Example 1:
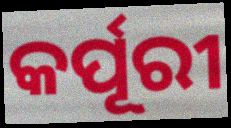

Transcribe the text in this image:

କର୍ପୂରୀ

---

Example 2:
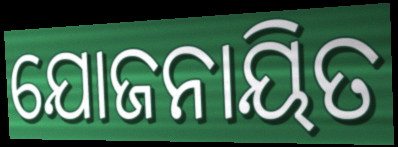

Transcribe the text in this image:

ଯୋଜନାୟିତ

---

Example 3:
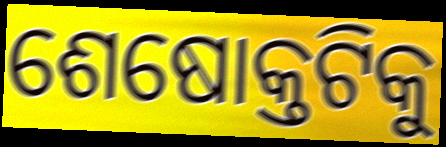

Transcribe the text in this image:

ଶେଷୋକ୍ତଟିକୁ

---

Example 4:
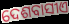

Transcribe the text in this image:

ଦେଶବାସୀଏ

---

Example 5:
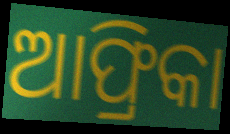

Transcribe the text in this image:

ଆଫ୍ରିକା